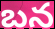
బన